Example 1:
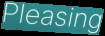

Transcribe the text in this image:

Pleasing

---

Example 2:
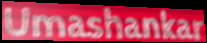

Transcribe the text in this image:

Umashankar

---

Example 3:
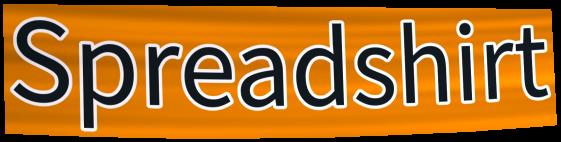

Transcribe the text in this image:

Spreadshirt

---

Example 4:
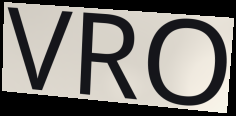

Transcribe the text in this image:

VRO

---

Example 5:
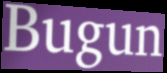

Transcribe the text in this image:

Bugun